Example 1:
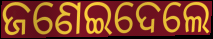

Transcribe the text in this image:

ଜଣେଇଦେଲେ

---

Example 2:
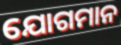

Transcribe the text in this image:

ଯୋଗମାନ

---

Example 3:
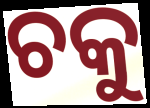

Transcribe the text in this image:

ଚକୁ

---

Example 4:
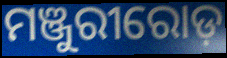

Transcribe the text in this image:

ମଞ୍ଜୁରୀରୋଡ଼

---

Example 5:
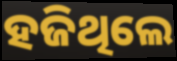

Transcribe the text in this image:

ହଜିଥିଲେ